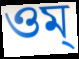
ওম্